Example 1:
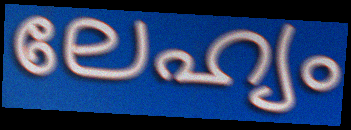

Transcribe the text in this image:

ലേഹ്യം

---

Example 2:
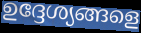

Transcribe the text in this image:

ഉദ്ദേശ്യങ്ങളെ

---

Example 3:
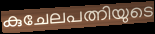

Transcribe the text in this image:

കുചേലപത്നിയുടെ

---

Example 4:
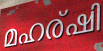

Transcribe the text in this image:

മഹര്ഷി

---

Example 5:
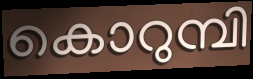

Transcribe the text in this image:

കൊറുമ്പി